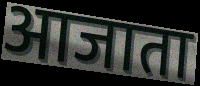
आजाता